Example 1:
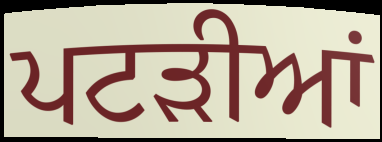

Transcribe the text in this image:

ਪਟਡ਼ੀਆਂ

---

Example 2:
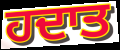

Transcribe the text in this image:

ਹਦਾਤ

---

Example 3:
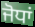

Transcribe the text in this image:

ਜੋਧਾਂ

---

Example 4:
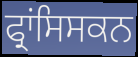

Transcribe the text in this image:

ਫ੍ਰਾਂਸਿਸਕਨ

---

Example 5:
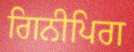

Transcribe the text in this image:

ਗਿਨੀਪਿਗ